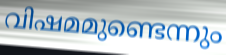
വിഷമമുണ്ടെന്നും